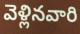
వెళ్లినవారి